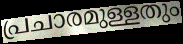
പ്രചാരമുള്ളതും